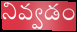
నివ్వడం